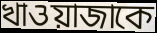
খাওয়াজাকে